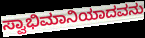
ಸ್ವಾಭಿಮಾನಿಯಾದವನು